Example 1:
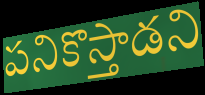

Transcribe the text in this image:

పనికొస్తాడని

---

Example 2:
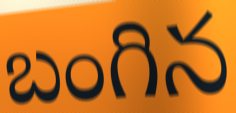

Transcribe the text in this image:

బంగిన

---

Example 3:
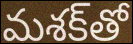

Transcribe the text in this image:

మశక్‌తో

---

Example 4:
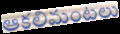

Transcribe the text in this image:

ఆకలిమంటలు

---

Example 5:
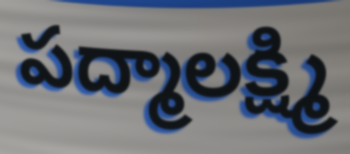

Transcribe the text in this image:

పద్మాలక్ష్మి